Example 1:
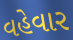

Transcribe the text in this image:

વહેવાર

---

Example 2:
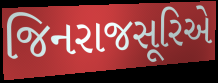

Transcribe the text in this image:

જિનરાજસૂરિએ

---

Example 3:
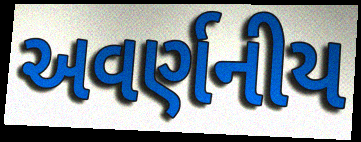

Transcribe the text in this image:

અવર્ણનીય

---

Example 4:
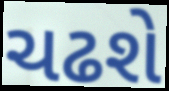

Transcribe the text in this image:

ચઢશે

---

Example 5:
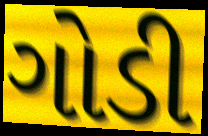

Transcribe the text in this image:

ગોડી